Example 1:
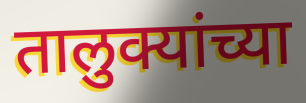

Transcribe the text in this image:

तालुक्यांच्या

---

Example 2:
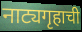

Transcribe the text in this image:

नाट्यगृहाची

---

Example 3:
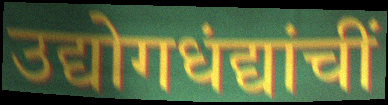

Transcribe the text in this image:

उद्योगधंद्यांचीं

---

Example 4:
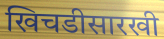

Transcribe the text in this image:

खिचडीसारखी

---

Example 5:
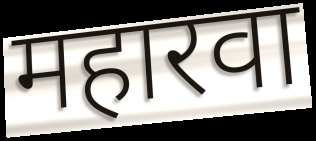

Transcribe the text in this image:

महारवा